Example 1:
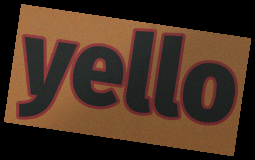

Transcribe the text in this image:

yello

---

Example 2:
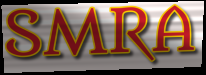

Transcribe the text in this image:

SMRA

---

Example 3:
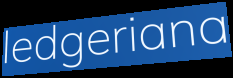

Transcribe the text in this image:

ledgeriana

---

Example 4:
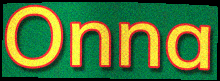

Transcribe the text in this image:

Onna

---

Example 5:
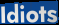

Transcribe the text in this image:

Idiots